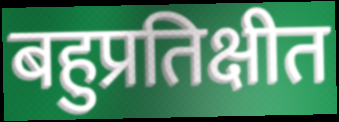
बहुप्रतिक्षीत